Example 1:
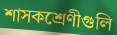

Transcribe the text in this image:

শাসকশ্রেণীগুলি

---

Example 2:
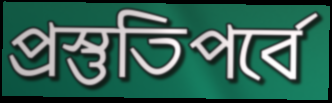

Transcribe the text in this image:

প্রস্তুতিপর্বে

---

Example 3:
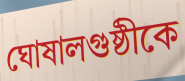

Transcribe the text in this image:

ঘোষালগুষ্ঠীকে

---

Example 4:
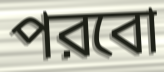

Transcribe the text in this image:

পরবো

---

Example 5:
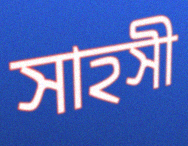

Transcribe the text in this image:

সাহসী